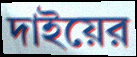
দাইয়ের